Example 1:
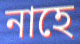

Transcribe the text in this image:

নাহে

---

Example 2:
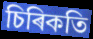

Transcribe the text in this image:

চিৰিকতি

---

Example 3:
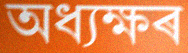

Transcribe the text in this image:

অধ্যক্ষৰ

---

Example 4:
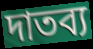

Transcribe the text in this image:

দাতব্য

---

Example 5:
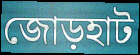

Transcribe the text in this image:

জোড়হাট